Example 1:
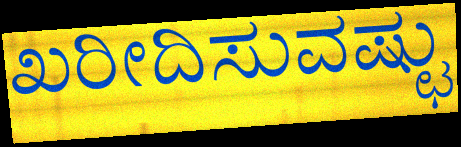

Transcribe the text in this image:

ಖರೀದಿಸುವಷ್ಟು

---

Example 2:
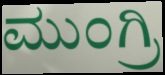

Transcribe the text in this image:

ಮುಂಗ್ರಿ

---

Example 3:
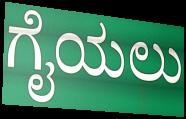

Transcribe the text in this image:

ಗೈಯಲು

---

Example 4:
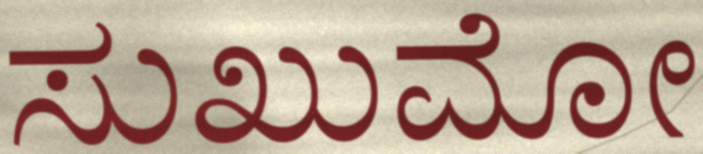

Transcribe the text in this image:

ಸುಖುಮೋ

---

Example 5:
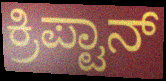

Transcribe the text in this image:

ಕ್ರಿಪ್ಟಾನ್